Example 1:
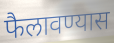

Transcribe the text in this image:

फैलावण्यास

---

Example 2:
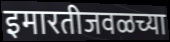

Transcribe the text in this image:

इमारतीजवळच्या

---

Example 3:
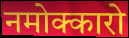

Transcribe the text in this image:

नमोक्कारो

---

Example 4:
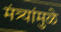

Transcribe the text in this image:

मंत्र्यांमुळे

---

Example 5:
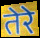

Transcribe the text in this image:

तेरे